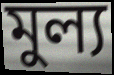
মুল্য